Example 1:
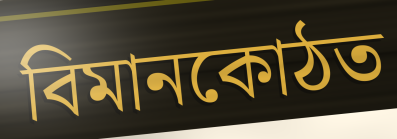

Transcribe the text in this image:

বিমানকোঠত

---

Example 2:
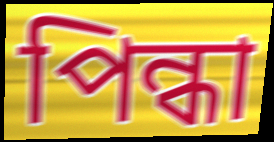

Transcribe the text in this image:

পিন্ধা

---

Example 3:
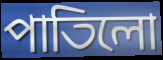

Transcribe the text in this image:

পাতিলো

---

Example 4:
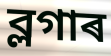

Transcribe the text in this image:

ব্লগাৰ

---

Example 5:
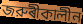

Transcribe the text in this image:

জৰুৰীকালীন